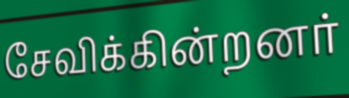
சேவிக்கின்றனர்